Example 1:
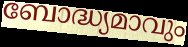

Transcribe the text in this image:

ബോദ്ധ്യമാവും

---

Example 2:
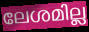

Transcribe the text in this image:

ലേശമില്ല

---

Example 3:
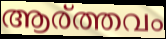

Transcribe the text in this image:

ആര്ത്തവം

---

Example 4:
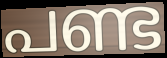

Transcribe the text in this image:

പണ്ട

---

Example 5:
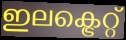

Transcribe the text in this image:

ഇലക്ട്രെറ്റ്